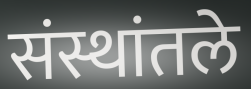
संस्थांतले